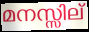
മനസ്സില്